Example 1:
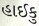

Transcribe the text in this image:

હાઈકુ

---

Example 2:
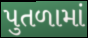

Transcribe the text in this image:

પુતળામાં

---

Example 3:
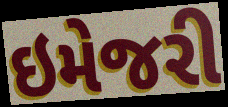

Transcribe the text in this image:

ઇમેજરી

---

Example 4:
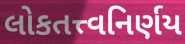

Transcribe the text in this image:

લોકતત્ત્વનિર્ણય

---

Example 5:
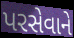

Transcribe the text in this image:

પરસેવાને